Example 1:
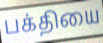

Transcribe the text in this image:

பக்தியை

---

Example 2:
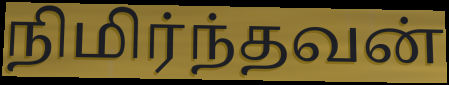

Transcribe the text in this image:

நிமிர்ந்தவன்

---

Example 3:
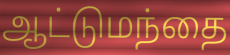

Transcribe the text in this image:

ஆட்டுமந்தை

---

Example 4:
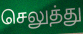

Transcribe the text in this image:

செலுத்து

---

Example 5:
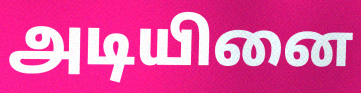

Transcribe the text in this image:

அடியினை